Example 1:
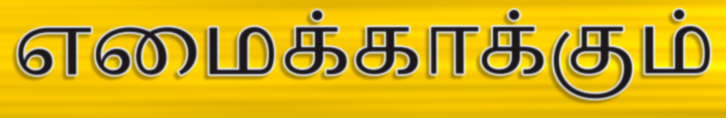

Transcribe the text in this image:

எமைக்காக்கும்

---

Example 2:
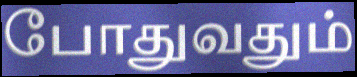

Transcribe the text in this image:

போதுவதும்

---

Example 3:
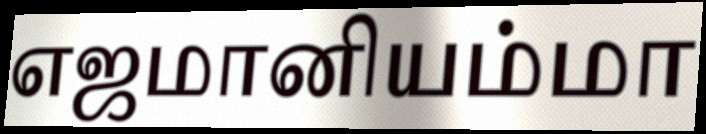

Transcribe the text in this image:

எஜமானியம்மா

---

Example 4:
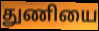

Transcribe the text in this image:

துணியை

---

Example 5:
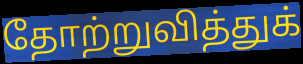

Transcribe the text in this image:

தோற்றுவித்துக்